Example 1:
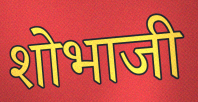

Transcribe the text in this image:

शोभाजी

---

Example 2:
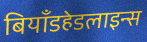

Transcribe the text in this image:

बियॉंडहेडलाइन्स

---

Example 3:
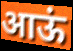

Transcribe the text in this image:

आऊं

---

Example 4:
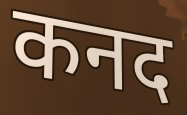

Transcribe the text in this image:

कनद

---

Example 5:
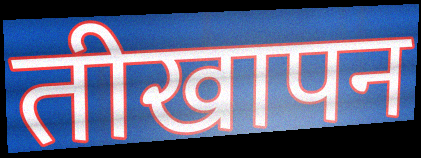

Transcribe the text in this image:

तीखापन